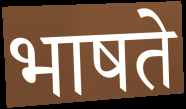
भाषते